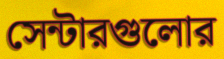
সেন্টারগুলোর